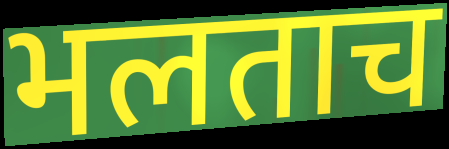
भलताच